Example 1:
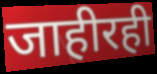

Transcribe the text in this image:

जाहीरही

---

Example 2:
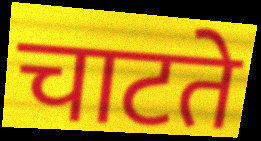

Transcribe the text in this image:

चाटते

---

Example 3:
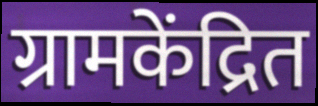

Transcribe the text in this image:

ग्रामकेंद्रित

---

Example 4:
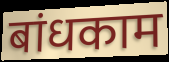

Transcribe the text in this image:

बांधकाम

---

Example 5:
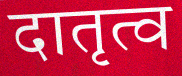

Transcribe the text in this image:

दातृत्व